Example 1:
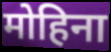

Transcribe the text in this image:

मोहिना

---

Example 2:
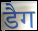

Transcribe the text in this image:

डैग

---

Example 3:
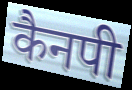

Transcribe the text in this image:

कैनपी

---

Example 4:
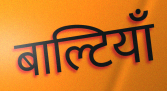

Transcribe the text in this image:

बाल्टियाँ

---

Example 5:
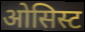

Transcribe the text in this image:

ओसिस्ट